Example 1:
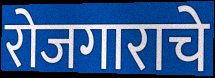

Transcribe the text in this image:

रोजगाराचे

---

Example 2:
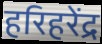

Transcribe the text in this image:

हरिहरेंद्र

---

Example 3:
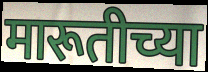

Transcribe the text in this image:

मारूतीच्या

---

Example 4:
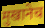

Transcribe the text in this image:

मुखानेच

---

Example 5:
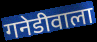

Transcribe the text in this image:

गनेडीवाला